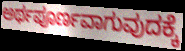
ಅರ್ಥಪೂರ್ಣವಾಗುವುದಕ್ಕೆ